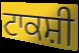
ਟਾਕਸ਼ੀ